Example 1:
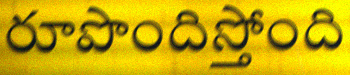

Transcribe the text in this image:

రూపొందిస్తోంది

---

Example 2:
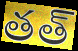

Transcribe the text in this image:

తత్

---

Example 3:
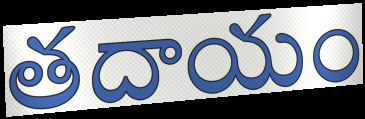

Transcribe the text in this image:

తదాయం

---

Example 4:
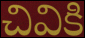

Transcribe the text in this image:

చివికి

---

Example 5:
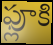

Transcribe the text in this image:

ఫ్లూకి